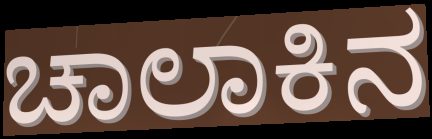
ಚಾಲಾಕಿನ